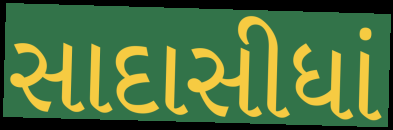
સાદાસીધાં